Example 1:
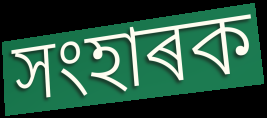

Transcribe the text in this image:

সংহাৰক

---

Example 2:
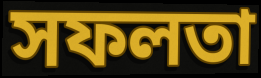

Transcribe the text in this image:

সফলতা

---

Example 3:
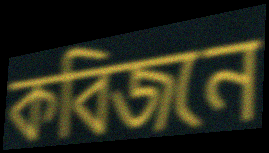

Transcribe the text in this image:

কবিজনে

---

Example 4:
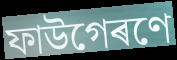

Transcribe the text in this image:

ফাউগেৰণে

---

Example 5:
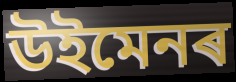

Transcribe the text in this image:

উইমেনৰ